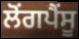
ਲੋਂਗਪੈਂਸੂ